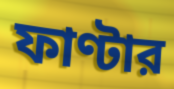
ফাণ্টার